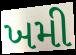
ખમી